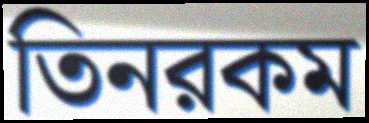
তিনরকম